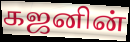
கஜனின்